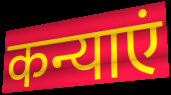
कन्याएं